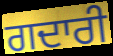
ਗਦਾਰੀ